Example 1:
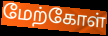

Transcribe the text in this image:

மேற்கோள்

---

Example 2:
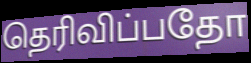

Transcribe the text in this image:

தெரிவிப்பதோ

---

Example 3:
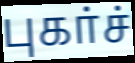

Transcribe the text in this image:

புகர்ச்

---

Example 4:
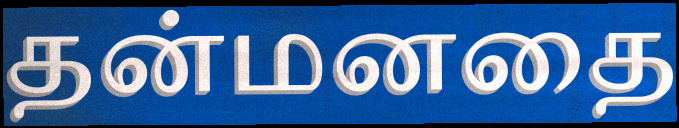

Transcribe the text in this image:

தன்மனதை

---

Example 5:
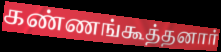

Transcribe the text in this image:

கண்ணங்கூத்தனார்